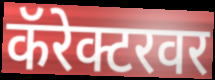
कॅरेक्टरवर